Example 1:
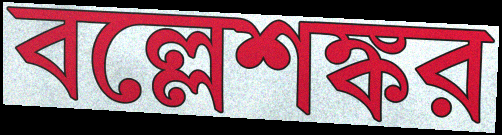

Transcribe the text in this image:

বল্লেশঙ্কর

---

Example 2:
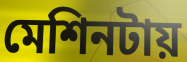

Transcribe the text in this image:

মেশিনটায়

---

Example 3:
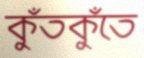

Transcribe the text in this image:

কুঁতকুঁতে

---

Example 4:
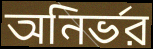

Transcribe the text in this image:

অনির্ভর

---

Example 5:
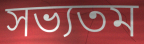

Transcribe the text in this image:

সভ্যতম